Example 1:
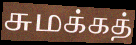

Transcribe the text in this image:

சுமக்கத்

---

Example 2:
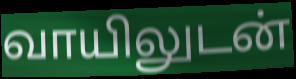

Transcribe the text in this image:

வாயிலுடன்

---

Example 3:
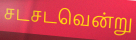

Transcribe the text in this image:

சடசடவென்று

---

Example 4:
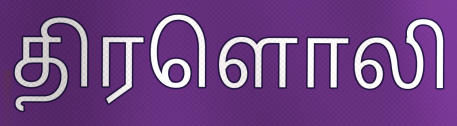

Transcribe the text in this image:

திரளொலி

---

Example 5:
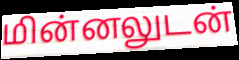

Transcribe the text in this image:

மின்னலுடன்